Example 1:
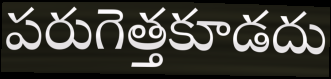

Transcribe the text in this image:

పరుగెత్తకూడదు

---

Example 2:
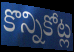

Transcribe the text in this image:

కొన్నికోట్ల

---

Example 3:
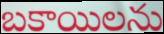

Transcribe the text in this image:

బకాయిలను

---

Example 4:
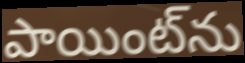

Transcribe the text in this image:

పాయింట్‌ను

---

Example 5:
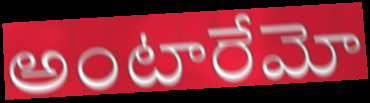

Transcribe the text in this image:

అంటారేమో